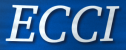
ECCI